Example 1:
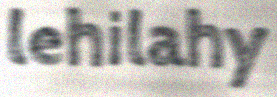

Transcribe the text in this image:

lehilahy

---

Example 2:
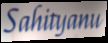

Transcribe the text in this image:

Sahityanu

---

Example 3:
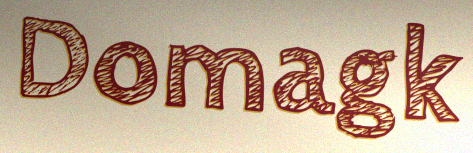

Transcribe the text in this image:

Domagk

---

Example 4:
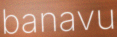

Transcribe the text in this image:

banavu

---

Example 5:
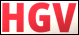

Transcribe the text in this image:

HGV